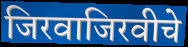
जिरवाजिरवीचे